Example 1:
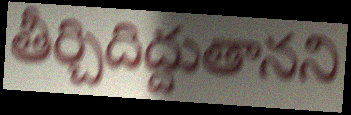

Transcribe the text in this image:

తీర్చిదిద్దుతానని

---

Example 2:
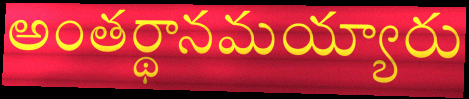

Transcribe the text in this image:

అంతర్థానమయ్యారు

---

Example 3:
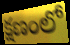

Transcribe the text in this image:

క్షణంలో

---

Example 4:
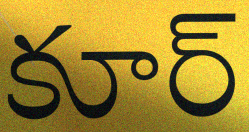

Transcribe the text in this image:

కూర్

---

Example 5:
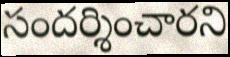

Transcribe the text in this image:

సందర్శించారని